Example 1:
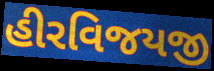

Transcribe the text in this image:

હીરવિજયજી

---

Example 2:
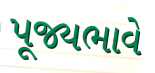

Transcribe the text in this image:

પૂજ્યભાવે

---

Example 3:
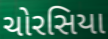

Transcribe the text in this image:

ચોરસિયા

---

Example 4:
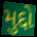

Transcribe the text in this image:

મુદ્દો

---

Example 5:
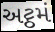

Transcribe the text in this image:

અટ્ઠમં